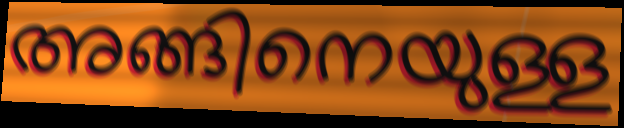
അങ്ങിനെയുള്ള